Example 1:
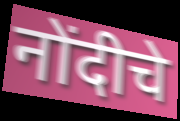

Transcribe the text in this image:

नोंदीचे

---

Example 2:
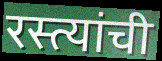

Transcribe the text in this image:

रस्त्यांची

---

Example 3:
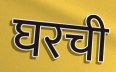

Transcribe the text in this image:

घरची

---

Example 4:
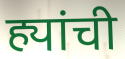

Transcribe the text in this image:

ह्यांची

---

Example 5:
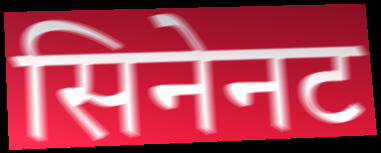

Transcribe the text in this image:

सिनेनट